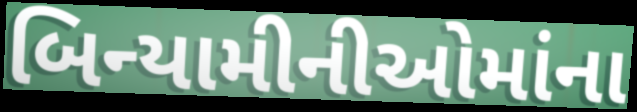
બિન્યામીનીઓમાંના